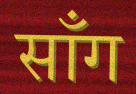
साँग